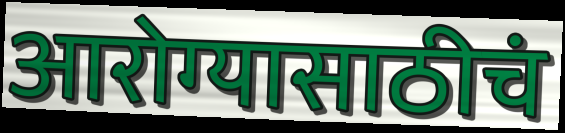
आरोग्यासाठीचं